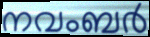
നവംബർ